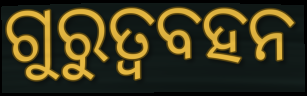
ଗୁରୁତ୍ୱବହନ